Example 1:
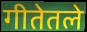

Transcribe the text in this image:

गीतेतले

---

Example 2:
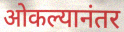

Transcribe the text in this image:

ओकल्यानंतर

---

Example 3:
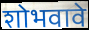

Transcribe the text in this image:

शोभवावे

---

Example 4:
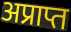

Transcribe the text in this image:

अप्राप्त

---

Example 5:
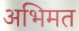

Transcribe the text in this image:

अभिमत